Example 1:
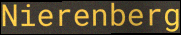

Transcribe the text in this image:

Nierenberg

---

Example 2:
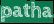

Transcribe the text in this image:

patha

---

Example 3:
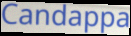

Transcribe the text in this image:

Candappa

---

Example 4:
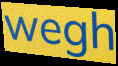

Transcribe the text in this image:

wegh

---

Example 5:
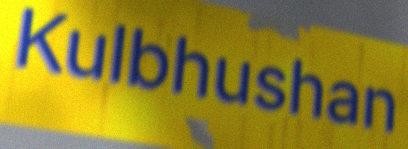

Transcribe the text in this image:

Kulbhushan